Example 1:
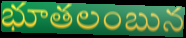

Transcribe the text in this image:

భూతలంబున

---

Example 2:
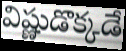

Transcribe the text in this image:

విష్ణుడొక్కడే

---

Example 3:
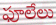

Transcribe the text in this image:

ఫూలేలు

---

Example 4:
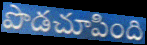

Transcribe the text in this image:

పొడచూపింది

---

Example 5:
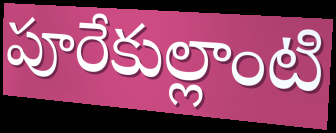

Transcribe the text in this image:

పూరేకుల్లాంటి